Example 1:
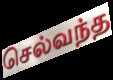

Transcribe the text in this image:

செல்வந்த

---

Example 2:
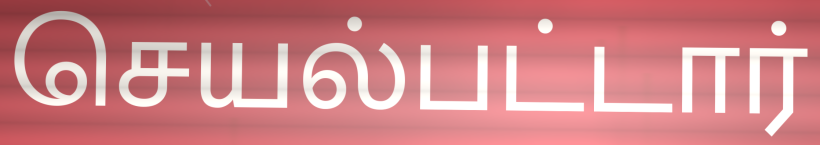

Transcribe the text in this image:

செயல்பட்டார்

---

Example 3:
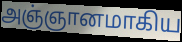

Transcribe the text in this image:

அஞ்ஞானமாகிய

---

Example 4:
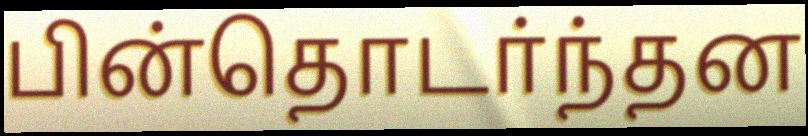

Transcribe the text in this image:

பின்தொடர்ந்தன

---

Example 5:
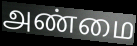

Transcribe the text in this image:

அண்மை